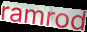
ramrod